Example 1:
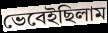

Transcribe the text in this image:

ভেবেইছিলাম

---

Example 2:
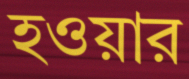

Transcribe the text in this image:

হওয়ার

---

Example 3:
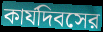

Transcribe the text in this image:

কার্যদিবসের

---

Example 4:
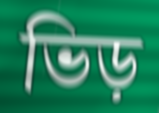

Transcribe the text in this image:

ভিড়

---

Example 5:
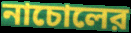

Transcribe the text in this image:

নাচোলের